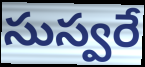
సుస్వరే